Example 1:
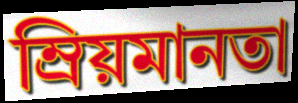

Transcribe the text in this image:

ম্রিয়মানতা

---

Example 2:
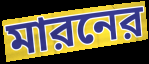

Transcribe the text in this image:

মারনের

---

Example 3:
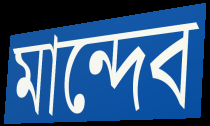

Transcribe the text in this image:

মান্দেব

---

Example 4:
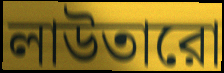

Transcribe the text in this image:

লাউতারো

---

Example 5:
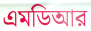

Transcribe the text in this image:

এমডিআর